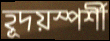
হূদয়স্পর্শী